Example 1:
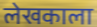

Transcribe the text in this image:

लेखकाला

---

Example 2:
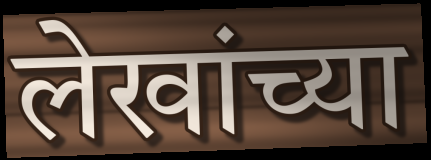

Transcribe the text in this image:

लेखांच्या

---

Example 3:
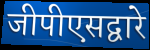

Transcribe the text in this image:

जीपीएसद्वारे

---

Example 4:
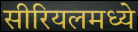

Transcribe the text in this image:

सीरियलमध्ये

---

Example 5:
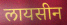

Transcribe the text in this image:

लायसीन